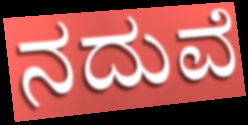
ನದುವೆ